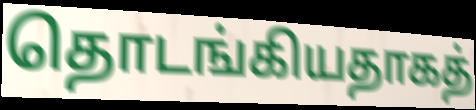
தொடங்கியதாகத்